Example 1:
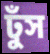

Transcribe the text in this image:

ঢুঁস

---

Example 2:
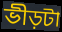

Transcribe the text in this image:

ভীড়টা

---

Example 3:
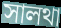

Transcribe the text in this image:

সালথা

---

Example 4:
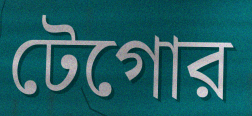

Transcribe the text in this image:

টেগোর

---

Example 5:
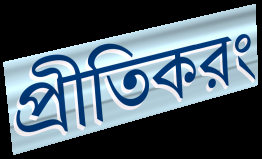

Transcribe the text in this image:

প্রীতিকরং